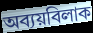
অব্যয়বিলাক